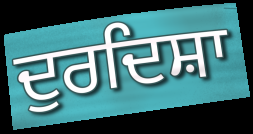
ਦੁਰਦਿਸ਼ਾ